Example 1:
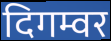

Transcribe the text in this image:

दिगम्वर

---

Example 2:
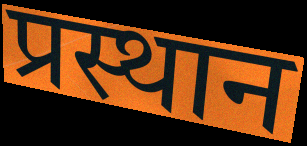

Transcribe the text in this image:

प्रस्थान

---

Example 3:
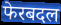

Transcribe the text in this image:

फेरबदल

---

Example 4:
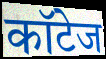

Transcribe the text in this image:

कॉटेज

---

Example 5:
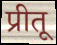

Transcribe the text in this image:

प्रीतू